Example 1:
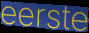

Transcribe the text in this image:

eerste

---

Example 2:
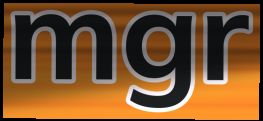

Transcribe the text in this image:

mgr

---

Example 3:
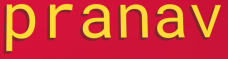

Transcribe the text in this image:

pranav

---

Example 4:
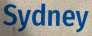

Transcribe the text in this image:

Sydney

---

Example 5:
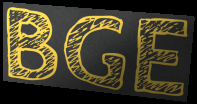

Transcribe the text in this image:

BGE